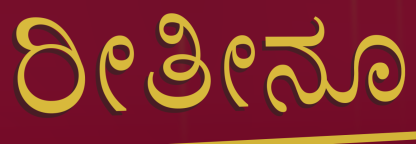
ರೀತೀನೂ